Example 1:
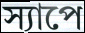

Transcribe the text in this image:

স্যাপে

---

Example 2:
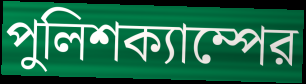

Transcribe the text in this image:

পুলিশক্যাম্পের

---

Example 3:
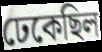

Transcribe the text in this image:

ঢেকেছিল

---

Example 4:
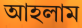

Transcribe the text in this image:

আহলাম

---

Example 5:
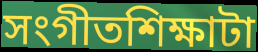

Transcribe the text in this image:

সংগীতশিক্ষাটা